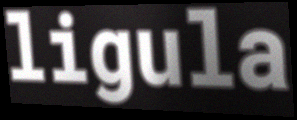
ligula